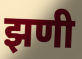
झणी